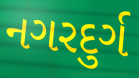
નગરદુર્ગ